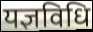
यज्ञविधि